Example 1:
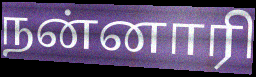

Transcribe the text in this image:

நன்னாரி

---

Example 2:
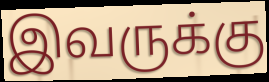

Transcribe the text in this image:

இவருக்கு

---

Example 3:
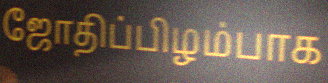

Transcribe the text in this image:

ஜோதிப்பிழம்பாக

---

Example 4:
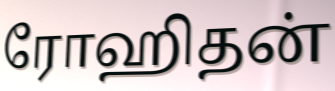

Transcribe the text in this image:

ரோஹிதன்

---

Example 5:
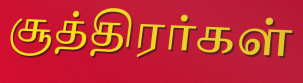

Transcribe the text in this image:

சூத்திரர்கள்